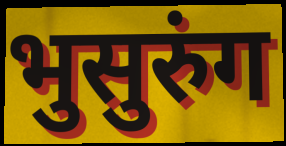
भुसुरुंग